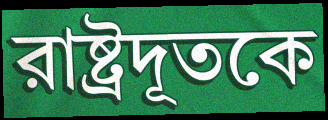
রাষ্ট্রদূতকে